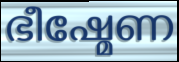
ഭീഷ്മേണ